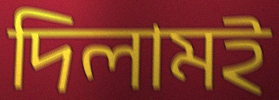
দিলামই